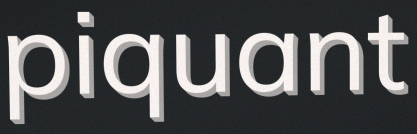
piquant